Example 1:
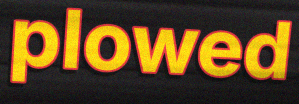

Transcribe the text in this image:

plowed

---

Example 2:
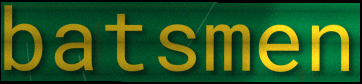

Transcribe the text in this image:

batsmen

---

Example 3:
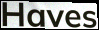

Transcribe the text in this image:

Haves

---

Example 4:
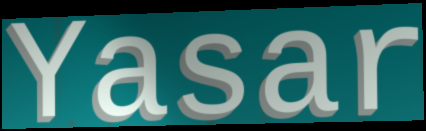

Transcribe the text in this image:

Yasar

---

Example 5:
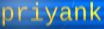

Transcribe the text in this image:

priyank